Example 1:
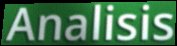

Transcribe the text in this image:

Analisis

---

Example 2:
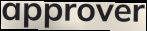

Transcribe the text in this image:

approver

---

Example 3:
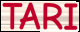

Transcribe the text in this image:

TARI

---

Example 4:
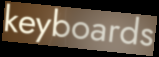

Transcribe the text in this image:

keyboards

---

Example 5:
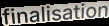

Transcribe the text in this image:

finalisation